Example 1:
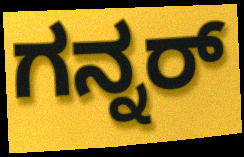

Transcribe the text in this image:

ಗನ್ನರ್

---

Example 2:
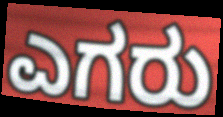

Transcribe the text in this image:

ಎಗರು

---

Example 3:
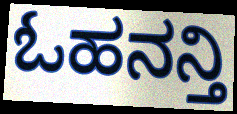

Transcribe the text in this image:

ಓಹನನ್ತಿ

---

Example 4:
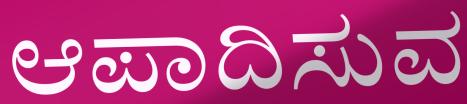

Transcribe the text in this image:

ಆಪಾದಿಸುವ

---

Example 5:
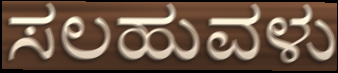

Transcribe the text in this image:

ಸಲಹುವಳು